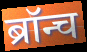
ब्रॉन्च